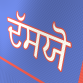
ਦੱਸਯੋ